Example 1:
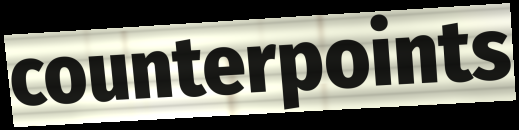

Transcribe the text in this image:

counterpoints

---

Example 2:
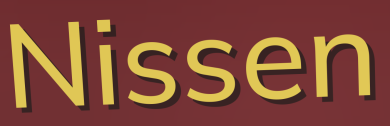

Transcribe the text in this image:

Nissen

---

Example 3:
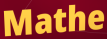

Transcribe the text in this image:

Mathe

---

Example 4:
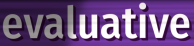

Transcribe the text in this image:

evaluative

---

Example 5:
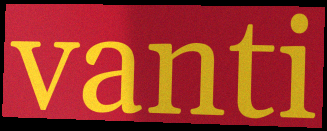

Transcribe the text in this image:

vanti